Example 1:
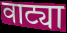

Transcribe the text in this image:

वाट्या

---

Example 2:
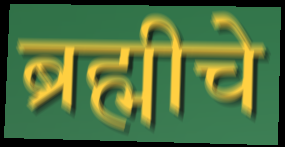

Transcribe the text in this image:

ब्रह्मीचे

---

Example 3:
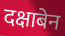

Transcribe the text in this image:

दक्षाबेन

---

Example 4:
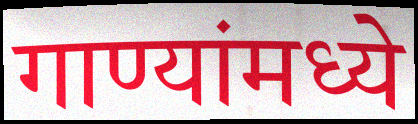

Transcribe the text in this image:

गाण्यांमध्ये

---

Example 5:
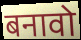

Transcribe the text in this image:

बनावो